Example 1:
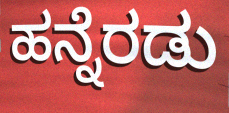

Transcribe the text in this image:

ಹನ್ನೆರಡು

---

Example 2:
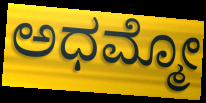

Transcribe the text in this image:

ಅಧಮ್ಮೋ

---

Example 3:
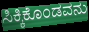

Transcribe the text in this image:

ಸಿಕ್ಕಿಕೊಂಡವನು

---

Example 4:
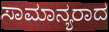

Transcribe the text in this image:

ಸಾಮಾನ್ಯರಾದ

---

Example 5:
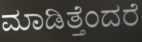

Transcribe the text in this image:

ಮಾಡಿತ್ತೆಂದರೆ